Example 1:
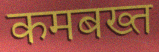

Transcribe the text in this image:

कमबख्त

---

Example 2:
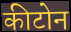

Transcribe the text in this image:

कीटोन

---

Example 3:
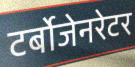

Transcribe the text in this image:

टर्बोजेनरेटर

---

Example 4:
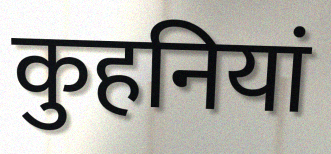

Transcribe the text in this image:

कुहनियां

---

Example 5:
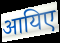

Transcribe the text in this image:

आयिए